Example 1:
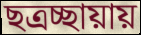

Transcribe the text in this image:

ছত্রচ্ছায়ায়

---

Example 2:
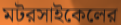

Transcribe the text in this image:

মটরসাইকেলের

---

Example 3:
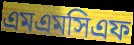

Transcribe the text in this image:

এমএমসিএফ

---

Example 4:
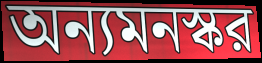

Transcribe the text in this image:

অন্যমনস্কর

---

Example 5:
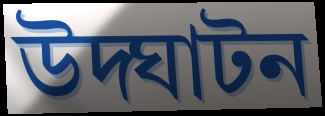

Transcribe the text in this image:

উদ্ঘাটন